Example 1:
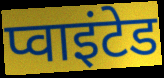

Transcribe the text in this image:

प्वाइंटेड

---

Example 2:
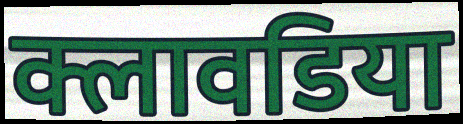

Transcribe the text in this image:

क्लावडिया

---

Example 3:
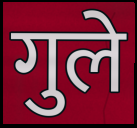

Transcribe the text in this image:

गुले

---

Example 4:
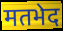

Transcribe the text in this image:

मतभेद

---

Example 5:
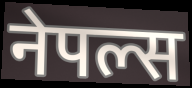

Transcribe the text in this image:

नेपल्स